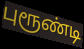
புரூண்டி